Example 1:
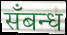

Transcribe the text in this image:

सँबन्ध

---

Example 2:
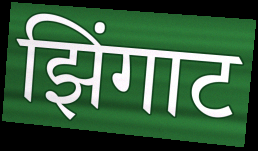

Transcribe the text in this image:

झिंगाट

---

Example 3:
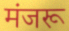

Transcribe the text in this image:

मंजरू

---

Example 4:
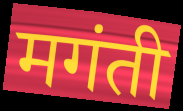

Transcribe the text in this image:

मगंती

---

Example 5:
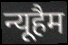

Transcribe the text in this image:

न्यूहैम